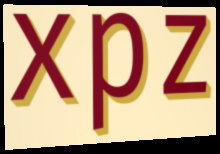
xpz